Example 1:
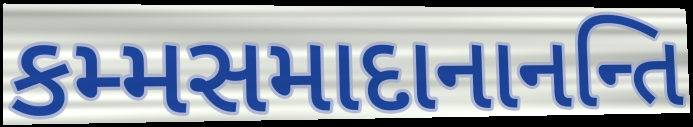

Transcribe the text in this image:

કમ્મસમાદાનાનન્તિ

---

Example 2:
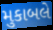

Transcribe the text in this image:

મુકાબલે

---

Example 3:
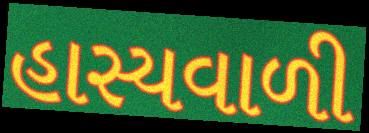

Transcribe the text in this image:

હાસ્યવાળી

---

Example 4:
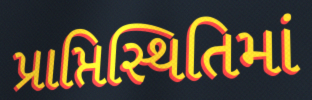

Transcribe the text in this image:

પ્રાપ્તિસ્થિતિમાં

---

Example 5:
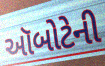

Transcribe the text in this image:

ઑબોટેની